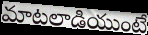
మాటలాడియుంటే